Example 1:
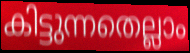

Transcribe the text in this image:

കിട്ടുന്നതെല്ലാം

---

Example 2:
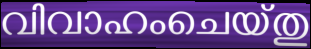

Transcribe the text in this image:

വിവാഹംചെയ്തു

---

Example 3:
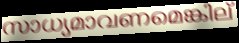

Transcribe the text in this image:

സാധ്യമാവണമെങ്കില്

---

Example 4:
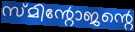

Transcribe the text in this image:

സ്മിന്റോജന്റെ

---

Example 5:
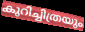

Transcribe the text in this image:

കുറിച്ചിത്രയും